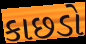
કાછડો